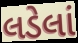
લડેલાં